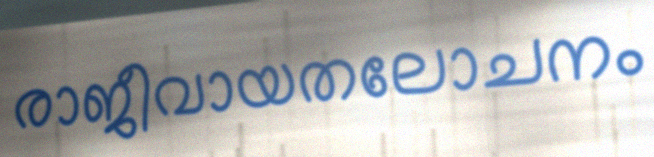
രാജീവായതലോചനം